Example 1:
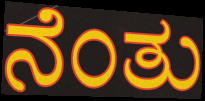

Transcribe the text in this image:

ನೆಂತು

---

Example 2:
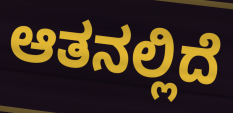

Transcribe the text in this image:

ಆತನಲ್ಲಿದೆ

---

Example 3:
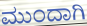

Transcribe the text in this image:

ಮುಂದಾಗಿ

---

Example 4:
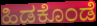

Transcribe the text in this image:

ಹಿಡಕೊಂಡೆ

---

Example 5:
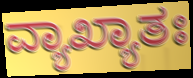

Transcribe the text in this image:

ವ್ಯಾಖ್ಯಾತಃ